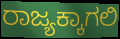
ರಾಜ್ಯಕ್ಕಾಗಲಿ